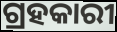
ଗ୍ରହକାରୀ